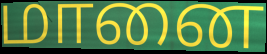
மானை